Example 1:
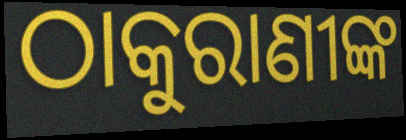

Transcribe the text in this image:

ଠାକୁରାଣୀଙ୍କ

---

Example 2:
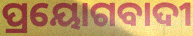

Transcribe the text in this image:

ପ୍ରୟୋଗବାଦୀ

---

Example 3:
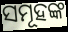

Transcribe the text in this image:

ସମୂହଙ୍କ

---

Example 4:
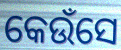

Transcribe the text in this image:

କେଉଁସେ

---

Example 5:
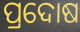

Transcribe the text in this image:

ପ୍ରଦୋଷ